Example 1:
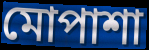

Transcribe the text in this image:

মোপাশা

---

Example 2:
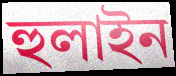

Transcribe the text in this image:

হুলাইন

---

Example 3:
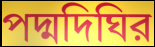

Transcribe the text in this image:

পদ্মদিঘির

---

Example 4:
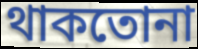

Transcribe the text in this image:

থাকতোনা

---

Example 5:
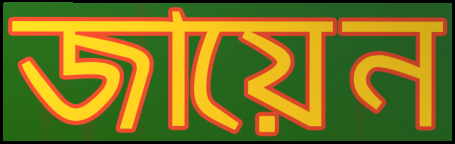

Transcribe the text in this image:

জায়েন